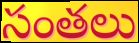
సంతలు